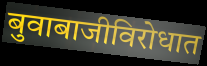
बुवाबाजीविरोधात